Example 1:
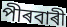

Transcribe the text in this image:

পীৰবাৰী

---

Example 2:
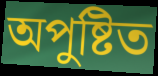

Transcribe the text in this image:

অপুষ্টিত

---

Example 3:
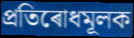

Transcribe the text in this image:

প্ৰতিৰোধমূলক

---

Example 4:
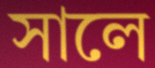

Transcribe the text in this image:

সালে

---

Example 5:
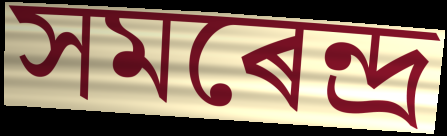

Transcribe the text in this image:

সমৰেন্দ্ৰ